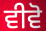
ਵੀਵੋ